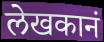
लेखकानं